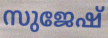
സുജേഷ്